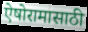
ऐषोरामासाठी